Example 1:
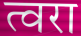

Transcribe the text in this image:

त्वरा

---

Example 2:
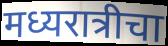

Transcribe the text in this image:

मध्यरात्रीचा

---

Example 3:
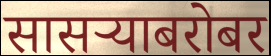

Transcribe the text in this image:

सासऱ्याबरोबर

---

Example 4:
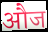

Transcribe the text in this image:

औज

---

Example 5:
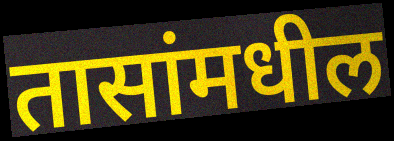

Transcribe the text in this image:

तासांमधील